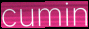
cumin